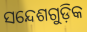
ସନ୍ଦେଶଗୁଡ଼ିକ